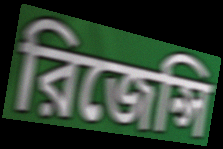
রিজেন্সি